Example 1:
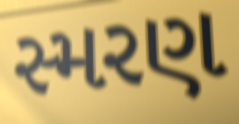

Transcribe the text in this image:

સ્‍મરણ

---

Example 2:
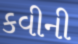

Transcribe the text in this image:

કવીની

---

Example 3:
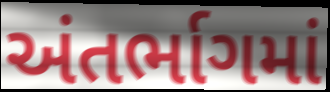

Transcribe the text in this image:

અંતર્ભાગમાં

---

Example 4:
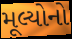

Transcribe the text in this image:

મૂલ્યોનો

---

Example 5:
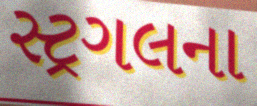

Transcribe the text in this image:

સ્ટ્રગલના